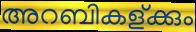
അറബികള്ക്കും